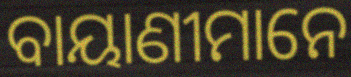
ବାୟାଣୀମାନେ